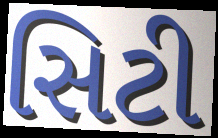
સિટી